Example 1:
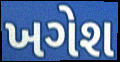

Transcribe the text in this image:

ખગેશ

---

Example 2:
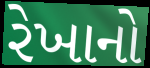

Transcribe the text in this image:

રેખાનો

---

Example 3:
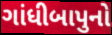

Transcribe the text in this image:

ગાંધીબાપુનો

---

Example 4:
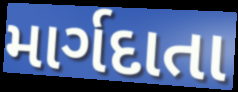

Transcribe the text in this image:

માર્ગદાતા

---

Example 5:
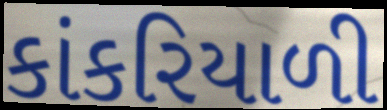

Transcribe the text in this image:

કાંકરિયાળી